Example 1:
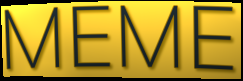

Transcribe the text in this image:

MEME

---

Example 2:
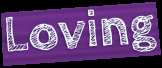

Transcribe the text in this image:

Loving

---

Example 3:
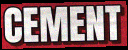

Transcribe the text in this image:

CEMENT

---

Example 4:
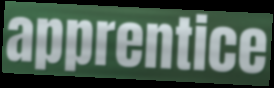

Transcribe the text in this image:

apprentice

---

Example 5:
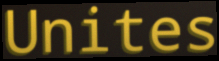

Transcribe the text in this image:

Unites